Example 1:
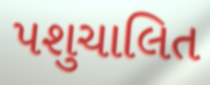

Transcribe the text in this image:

પશુચાલિત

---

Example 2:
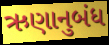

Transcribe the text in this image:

ઋણાનુબંધ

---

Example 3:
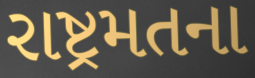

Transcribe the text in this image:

રાષ્ટ્રમતના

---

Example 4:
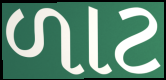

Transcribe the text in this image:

ળાટ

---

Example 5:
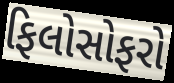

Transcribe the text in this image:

ફિલોસોફરો